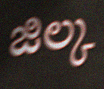
జిల్క